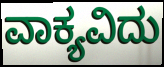
ವಾಕ್ಯವಿದು